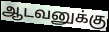
ஆடவனுக்கு